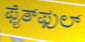
ಫೈತ್‌ಫುಲ್